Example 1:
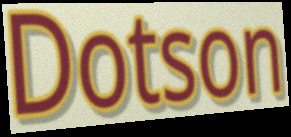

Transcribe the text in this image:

Dotson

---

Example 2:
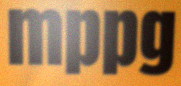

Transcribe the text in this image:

mppg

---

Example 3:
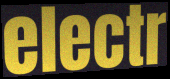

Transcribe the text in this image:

electr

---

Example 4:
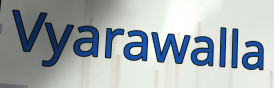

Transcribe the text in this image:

Vyarawalla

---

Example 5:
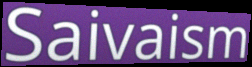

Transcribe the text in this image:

Saivaism